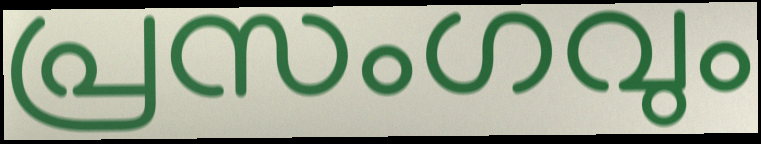
പ്രസംഗവും